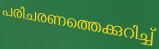
പരിചരണത്തെക്കുറിച്ച്